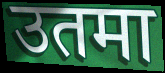
उतमा